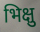
भिक्षु